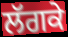
ਲੱਗਕੇ